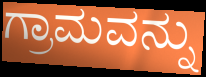
ಗ್ರಾಮವನ್ನು